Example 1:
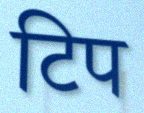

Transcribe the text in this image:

टिप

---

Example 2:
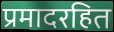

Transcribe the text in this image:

प्रमादरहित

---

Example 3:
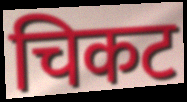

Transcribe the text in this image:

चिकट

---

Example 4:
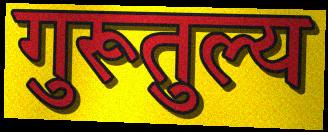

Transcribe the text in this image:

गुरूतुल्य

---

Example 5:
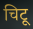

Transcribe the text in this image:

चिटू